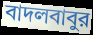
বাদলবাবুর